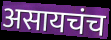
असायचंच